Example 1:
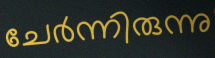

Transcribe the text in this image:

ചേർന്നിരുന്നു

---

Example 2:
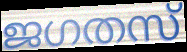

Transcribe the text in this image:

ജഗതസ്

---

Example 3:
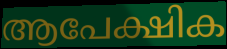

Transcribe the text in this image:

ആപേക്ഷിക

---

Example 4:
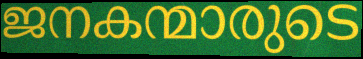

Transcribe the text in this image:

ജനകന്മാരുടെ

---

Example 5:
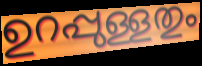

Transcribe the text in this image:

ഉറപ്പുള്ളതും